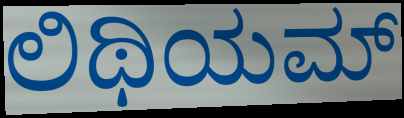
ಲಿಥಿಯಮ್